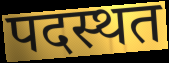
पदस्थत